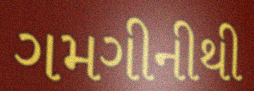
ગમગીનીથી